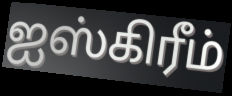
ஐஸ்கிரீம்